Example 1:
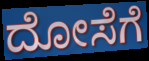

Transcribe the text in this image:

ದೋಸೆಗೆ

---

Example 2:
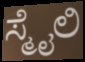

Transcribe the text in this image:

ಸ್ಮೈಲಿ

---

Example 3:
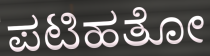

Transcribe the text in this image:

ಪಟಿಹತೋ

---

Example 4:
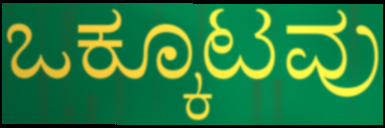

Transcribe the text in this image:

ಒಕ್ಕೂಟವು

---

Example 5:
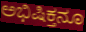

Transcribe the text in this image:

ಅಭಿಷಿಕ್ತನೂ